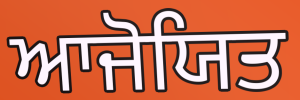
ਆਜੋਯਿਤ